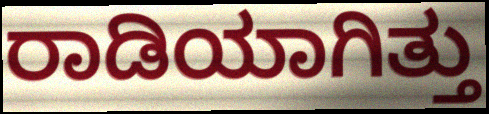
ರಾಡಿಯಾಗಿತ್ತು